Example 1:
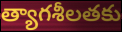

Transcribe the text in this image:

త్యాగశీలతకు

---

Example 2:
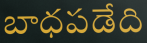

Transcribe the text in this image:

బాధపడేది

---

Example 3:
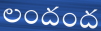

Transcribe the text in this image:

లందంద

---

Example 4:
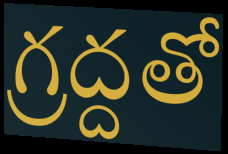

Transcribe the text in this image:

గ్రద్దతో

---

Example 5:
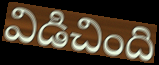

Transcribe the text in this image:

విడిచింది